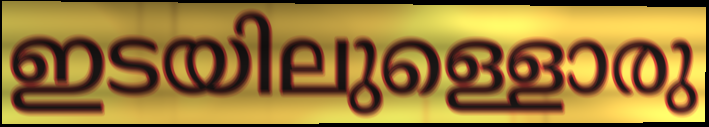
ഇടയിലുള്ളൊരു